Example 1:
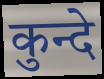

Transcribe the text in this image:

कुन्दे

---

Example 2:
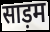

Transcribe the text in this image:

साड़म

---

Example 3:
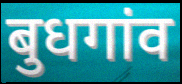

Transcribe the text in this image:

बुधगांव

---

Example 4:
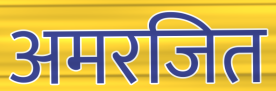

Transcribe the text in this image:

अमरजित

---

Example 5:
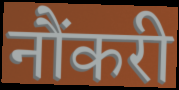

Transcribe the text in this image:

नौंकरी